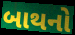
બાથનો